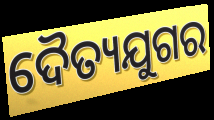
ଦୈତ୍ୟଯୁଗର